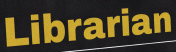
Librarian